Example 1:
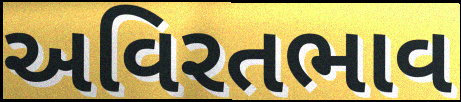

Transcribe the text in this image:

અવિરતભાવ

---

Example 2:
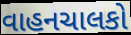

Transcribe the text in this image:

વાહનચાલકો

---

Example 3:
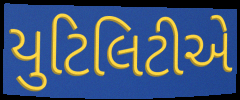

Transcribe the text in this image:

યુટિલિટીએ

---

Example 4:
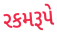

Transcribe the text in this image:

રકમરૂપે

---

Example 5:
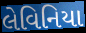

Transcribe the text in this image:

લેવિનિયા